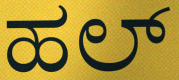
ಹಲ್